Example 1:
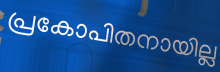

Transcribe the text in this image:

പ്രകോപിതനായില്ല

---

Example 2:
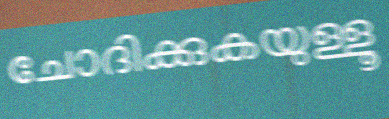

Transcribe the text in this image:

ചോദിക്കുകയുള്ളൂ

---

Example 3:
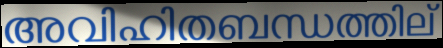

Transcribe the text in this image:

അവിഹിതബന്ധത്തില്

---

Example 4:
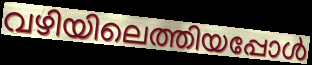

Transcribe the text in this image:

വഴിയിലെത്തിയപ്പോൾ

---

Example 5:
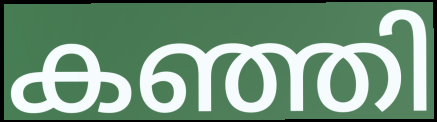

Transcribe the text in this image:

കഞ്ഞി